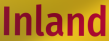
Inland